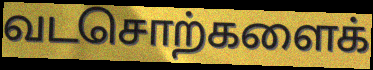
வடசொற்களைக்